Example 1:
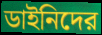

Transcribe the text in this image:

ডাইনিদের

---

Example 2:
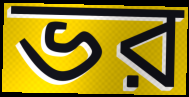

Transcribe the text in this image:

ভর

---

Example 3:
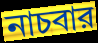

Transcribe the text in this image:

নাচবার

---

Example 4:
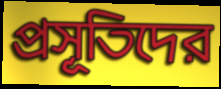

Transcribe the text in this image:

প্রসূতিদের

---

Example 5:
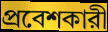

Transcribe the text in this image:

প্রবেশকারী